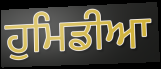
ਹੁਮਿਡੀਆ